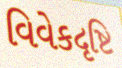
વિવેકદૃષ્ટિ